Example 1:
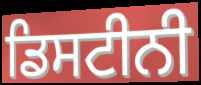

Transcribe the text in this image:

ਡਿਸਟੀਨੀ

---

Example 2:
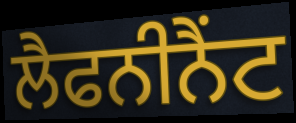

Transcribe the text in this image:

ਲੈਫਨੀਨੈਂਟ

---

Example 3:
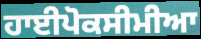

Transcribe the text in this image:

ਹਾਈਪੋਕਸੀਮੀਆ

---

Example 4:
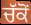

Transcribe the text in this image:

ਚੱਕੋਂ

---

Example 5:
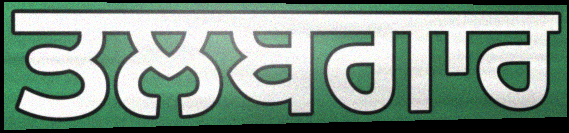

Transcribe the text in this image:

ਤਲਬਗਾਰ